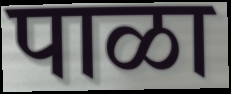
पाळा